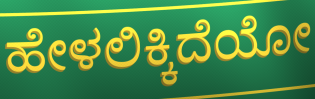
ಹೇಳಲಿಕ್ಕಿದೆಯೋ